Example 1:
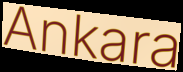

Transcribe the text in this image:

Ankara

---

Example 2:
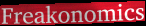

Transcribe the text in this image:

Freakonomics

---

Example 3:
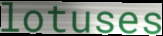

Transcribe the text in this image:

lotuses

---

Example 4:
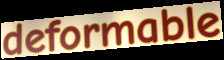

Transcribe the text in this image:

deformable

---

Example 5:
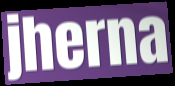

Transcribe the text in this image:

jherna